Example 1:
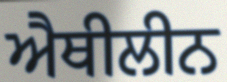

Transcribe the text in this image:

ਐਥੀਲੀਨ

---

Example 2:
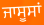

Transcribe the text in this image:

ਜਾਸੂਸਾਂ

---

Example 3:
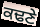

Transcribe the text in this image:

ਕਢਣੇ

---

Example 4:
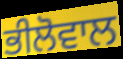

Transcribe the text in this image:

ਭੀਲੋਵਾਲ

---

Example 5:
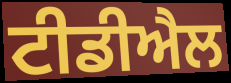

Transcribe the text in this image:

ਟੀਡੀਐਲ